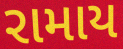
રામાય